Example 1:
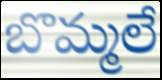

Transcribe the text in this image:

బొమ్మలే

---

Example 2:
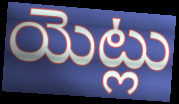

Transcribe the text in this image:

యెట్లు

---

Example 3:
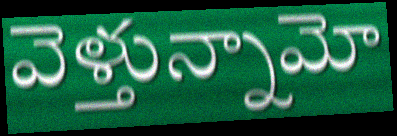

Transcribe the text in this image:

వెళ్తున్నామో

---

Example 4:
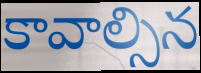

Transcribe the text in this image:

కావాల్సిన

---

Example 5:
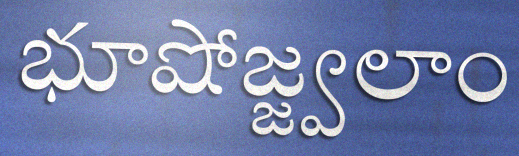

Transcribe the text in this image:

భూషోజ్జ్వలాం